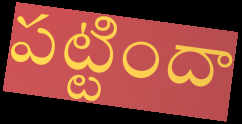
పట్టిందా